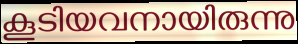
കൂടിയവനായിരുന്നു